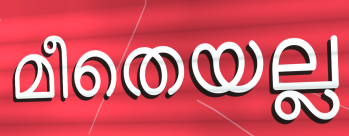
മീതെയല്ല